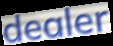
dealer